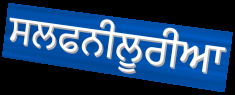
ਸਲਫਨੀਲੂਰੀਆ